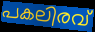
പകലിരവ്